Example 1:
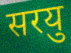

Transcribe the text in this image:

सरयु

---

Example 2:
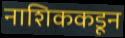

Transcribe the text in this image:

नाशिककडून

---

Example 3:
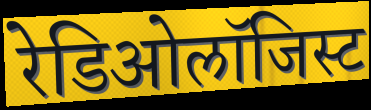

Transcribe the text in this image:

रेडिओलॉजिस्ट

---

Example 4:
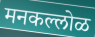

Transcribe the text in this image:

मनकल्लोळ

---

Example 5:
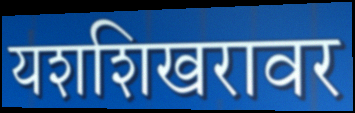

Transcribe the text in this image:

यशशिखरावर